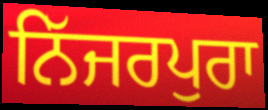
ਨਿੱਜਰਪੁਰਾ